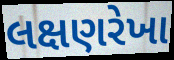
લક્ષણરેખા